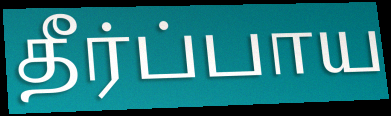
தீர்ப்பாய